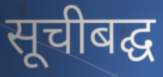
सूचीबद्घ